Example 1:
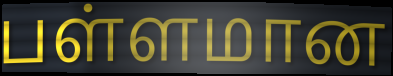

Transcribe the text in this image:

பள்ளமான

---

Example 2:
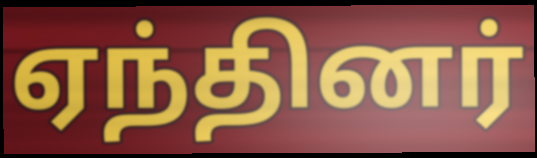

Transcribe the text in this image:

ஏந்தினர்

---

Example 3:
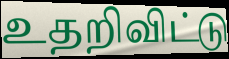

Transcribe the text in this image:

உதறிவிட்டு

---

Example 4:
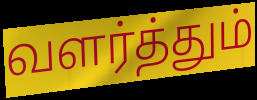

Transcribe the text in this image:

வளர்த்தும்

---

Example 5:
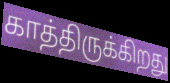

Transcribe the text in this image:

காத்திருக்கிறது